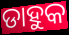
ଡାହୁକ